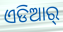
ଏଡିଆର୍